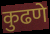
कुढणे